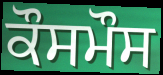
ਕੌਸਮੌਸ